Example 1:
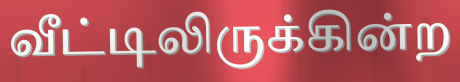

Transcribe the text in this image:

வீட்டிலிருக்கின்ற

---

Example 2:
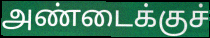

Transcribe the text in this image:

அண்டைக்குச்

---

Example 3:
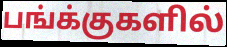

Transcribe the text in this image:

பங்க்குகளில்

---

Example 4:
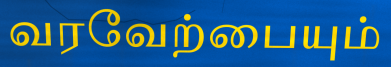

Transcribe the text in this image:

வரவேற்பையும்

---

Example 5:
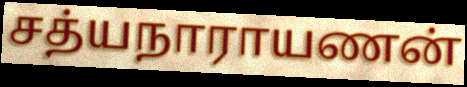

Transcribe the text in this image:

சத்யநாராயணன்